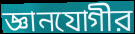
জ্ঞানযোগীর